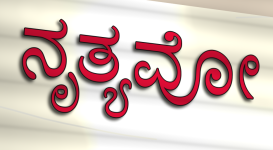
ನೃತ್ಯವೋ